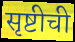
सृष्टीची